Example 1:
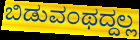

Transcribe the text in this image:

ಬಿಡುವಂಥದ್ದಲ್ಲ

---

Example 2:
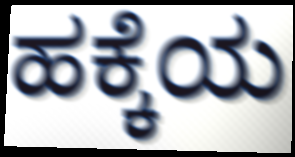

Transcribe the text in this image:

ಹಕ್ಕೆಯ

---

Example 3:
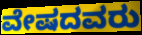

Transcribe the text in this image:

ವೇಷದವರು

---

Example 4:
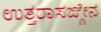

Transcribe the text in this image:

ಉತ್ತರಾಸಙ್ಗೇನ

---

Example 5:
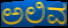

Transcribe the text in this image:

ಅಲಿವ